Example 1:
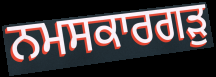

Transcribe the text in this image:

ਨਮਸਕਾਰਗੜੁ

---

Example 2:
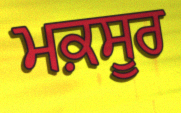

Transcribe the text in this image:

ਮਕ਼ਸੂਰ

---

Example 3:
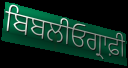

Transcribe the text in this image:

ਬਿਬਲੀਓਗ੍ਰਾਫ਼ੀ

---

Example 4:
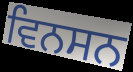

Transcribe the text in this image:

ਵਿਨਸਨ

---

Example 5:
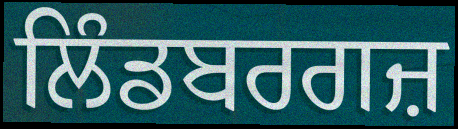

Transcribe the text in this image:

ਲਿੰਡਬਰਗਜ਼